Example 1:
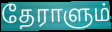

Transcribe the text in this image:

தேராளும்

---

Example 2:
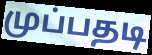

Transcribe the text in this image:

முப்பதடி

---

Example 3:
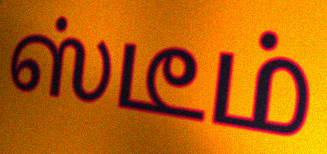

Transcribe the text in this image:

ஸ்டீம்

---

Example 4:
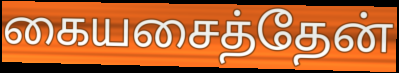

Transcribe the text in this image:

கையசைத்தேன்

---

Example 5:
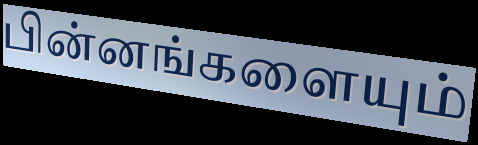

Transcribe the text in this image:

பின்னங்களையும்